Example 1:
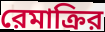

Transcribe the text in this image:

রেমাক্রির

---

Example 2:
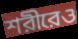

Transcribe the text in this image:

শরীরেও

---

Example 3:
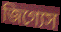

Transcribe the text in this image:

জিগ্যেস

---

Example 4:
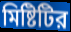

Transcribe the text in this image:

মিষ্টিটির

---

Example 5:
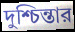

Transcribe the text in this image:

দুশ্চিন্তার